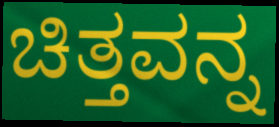
ಚಿತ್ತವನ್ನ